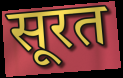
सूरत